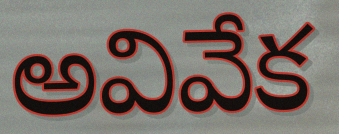
అవివేక